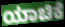
ಯಾಚಿಕೆ